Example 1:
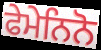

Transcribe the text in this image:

ਫੇਮੇਨਿਨੋ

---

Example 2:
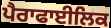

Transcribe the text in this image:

ਪੈਰਾਫਾਈਲਿਕ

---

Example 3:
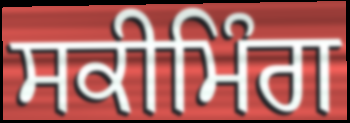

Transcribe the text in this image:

ਸਕੀਮਿੰਗ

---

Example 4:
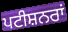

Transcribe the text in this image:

ਪਟੀਸ਼ਨਰਾਂ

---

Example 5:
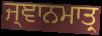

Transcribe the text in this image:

ਜ੍ਞਾਨਮਾਤ੍ਰ